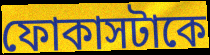
ফোকাসটাকে